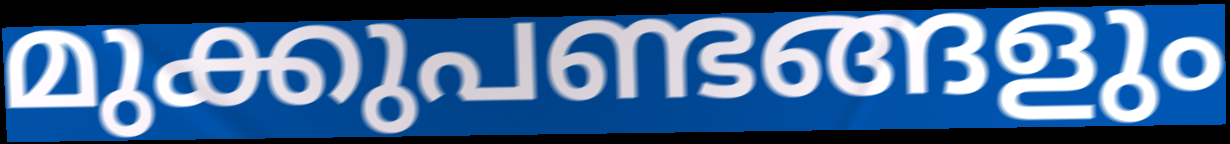
മുക്കുപണ്ടങ്ങളും